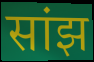
सांझ